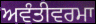
ਅਵੰਤੀਵਰਮਾ